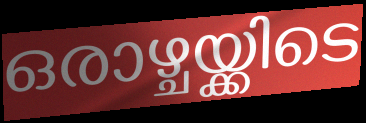
ഒരാഴ്ചയ്ക്കിടെ